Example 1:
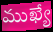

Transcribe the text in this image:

ముఖ్యే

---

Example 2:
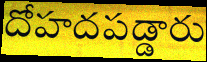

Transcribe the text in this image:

దోహదపడ్డారు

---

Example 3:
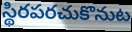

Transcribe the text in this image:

స్థిరపరచుకొనుట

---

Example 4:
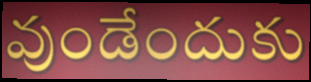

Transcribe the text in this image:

వుండేందుకు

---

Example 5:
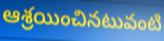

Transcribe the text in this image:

ఆశ్రయించినటువంటి